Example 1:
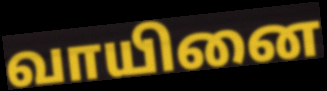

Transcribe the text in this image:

வாயினை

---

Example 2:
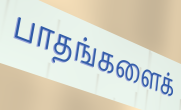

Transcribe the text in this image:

பாதங்களைக்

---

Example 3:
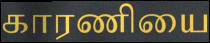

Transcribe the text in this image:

காரணியை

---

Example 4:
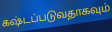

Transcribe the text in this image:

கஷ்டப்படுவதாகவும்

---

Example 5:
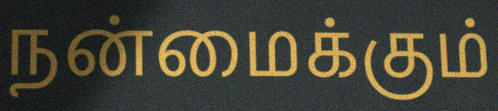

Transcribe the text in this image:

நன்மைக்கும்